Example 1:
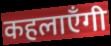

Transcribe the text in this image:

कहलाएँगी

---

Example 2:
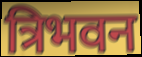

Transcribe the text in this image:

त्रिभवन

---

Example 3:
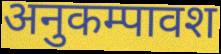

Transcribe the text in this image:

अनुकम्पावश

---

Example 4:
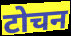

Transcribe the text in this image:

टोचन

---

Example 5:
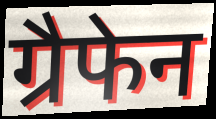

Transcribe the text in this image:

ग्रैफेन